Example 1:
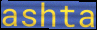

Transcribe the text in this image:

ashta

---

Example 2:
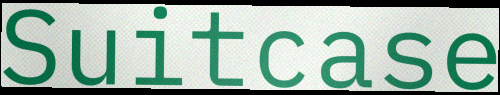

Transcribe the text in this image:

Suitcase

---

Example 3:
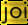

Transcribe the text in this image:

joi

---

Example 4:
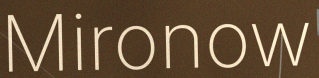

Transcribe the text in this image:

Mironow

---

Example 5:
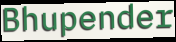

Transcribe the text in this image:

Bhupender